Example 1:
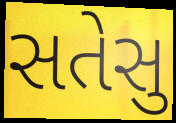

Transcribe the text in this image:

સતેસુ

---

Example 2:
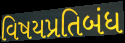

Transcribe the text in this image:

વિષયપ્રતિબંધ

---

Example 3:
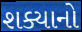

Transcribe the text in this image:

શક્યાનો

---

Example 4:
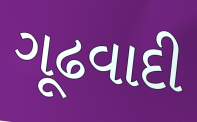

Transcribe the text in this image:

ગૂઢવાદી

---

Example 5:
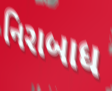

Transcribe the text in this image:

નિરાબાધ